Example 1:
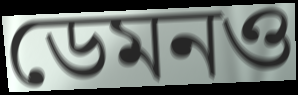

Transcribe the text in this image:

ডেমনও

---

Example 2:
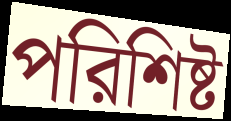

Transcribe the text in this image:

পরিশিষ্ট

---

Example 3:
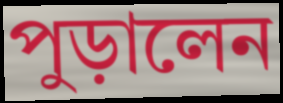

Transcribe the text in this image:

পুড়ালেন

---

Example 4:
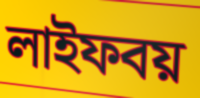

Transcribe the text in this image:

লাইফবয়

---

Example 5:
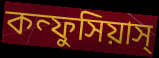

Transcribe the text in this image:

কন্ফুসিয়াস্